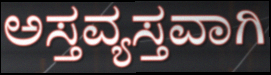
ಅಸ್ತವ್ಯಸ್ತವಾಗಿ